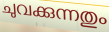
ചുവക്കുന്നതും